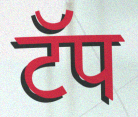
टॅप